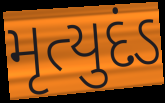
મૃત્યુદંડ